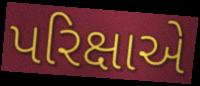
પરિક્ષાએ